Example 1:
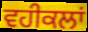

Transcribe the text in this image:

ਵਹੀਕਲਾਂ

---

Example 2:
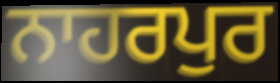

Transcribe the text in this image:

ਨਾਹਰਪੁਰ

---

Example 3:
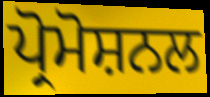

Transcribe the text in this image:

ਪ੍ਰੋਮੋਸ਼ਨਲ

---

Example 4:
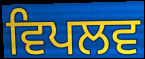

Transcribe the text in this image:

ਵਿਪਲਵ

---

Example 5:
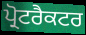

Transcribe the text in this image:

ਪ੍ਰੋਟਰੈਕਟਰ